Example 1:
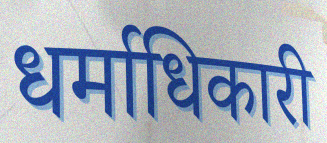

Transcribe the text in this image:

धर्माधिकारी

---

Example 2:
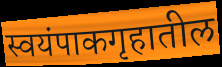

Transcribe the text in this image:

स्वयंपाकगृहातील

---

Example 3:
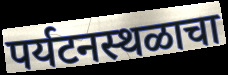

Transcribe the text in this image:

पर्यटनस्थळाचा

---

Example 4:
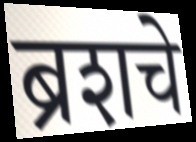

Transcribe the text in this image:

ब्रशचे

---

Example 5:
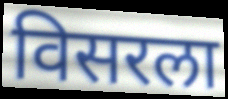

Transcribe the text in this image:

विसरला